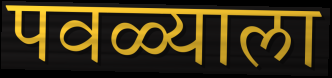
पवळ्याला